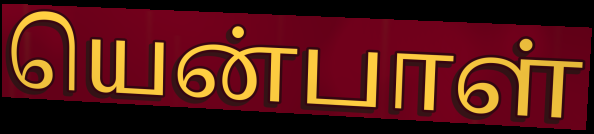
யென்பாள்